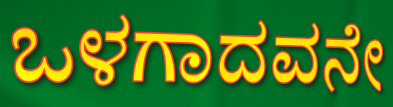
ಒಳಗಾದವನೇ